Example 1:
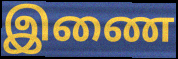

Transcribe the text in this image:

இணை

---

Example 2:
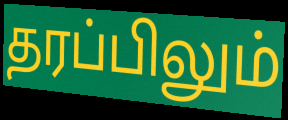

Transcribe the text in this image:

தரப்பிலும்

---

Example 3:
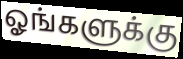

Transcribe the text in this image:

ஓங்களுக்கு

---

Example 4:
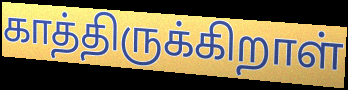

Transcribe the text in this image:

காத்திருக்கிறாள்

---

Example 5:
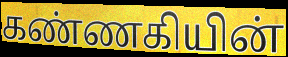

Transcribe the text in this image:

கண்ணகியின்